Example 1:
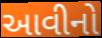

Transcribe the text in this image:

આવીનો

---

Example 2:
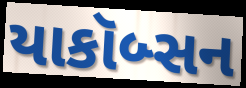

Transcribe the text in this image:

યાકૉબ્સન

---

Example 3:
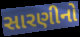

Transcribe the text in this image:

સારણીનો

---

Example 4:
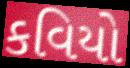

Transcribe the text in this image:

કવિયો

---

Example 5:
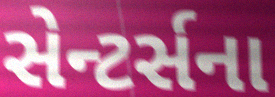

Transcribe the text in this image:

સેન્ટર્સના